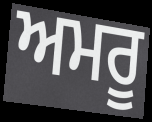
ਅਮਰੂ